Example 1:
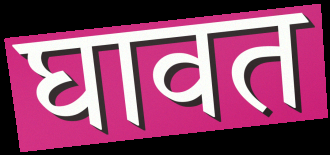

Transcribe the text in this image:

घावत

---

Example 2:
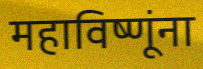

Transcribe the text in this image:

महाविष्णूंना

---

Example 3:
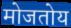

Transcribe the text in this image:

मोजतोय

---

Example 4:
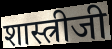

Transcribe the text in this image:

शास्त्रीजी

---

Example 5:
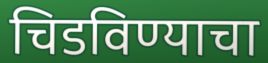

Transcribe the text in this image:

चिडविण्याचा